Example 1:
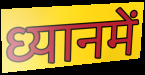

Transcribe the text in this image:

ध्यानमें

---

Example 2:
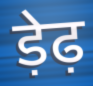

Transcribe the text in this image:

ड़ेढ़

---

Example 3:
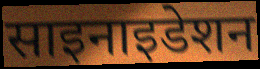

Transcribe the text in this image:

साइनाइडेशन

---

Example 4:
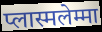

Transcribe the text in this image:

प्लास्मलेम्मा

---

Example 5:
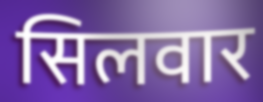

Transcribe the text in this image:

सिलवार